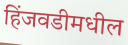
हिंजवडीमधील